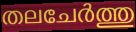
തലചേർത്തു